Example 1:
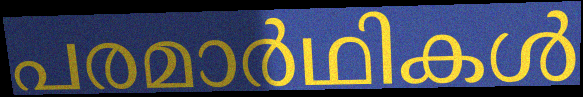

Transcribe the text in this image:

പരമാർഥികൾ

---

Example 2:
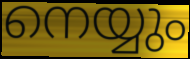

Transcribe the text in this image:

നെയ്യും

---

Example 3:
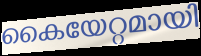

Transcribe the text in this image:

കൈയേറ്റമായി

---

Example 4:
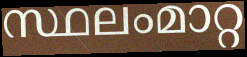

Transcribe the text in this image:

സ്ഥലംമാറ്റ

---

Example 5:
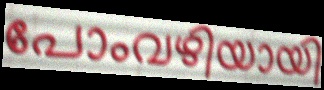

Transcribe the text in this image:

പോംവഴിയായി